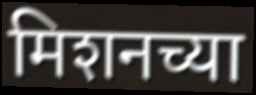
मिशनच्या